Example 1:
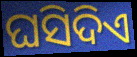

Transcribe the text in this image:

ଘସିଦିଏ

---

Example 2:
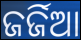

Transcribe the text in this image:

ଜର୍ଜିଆ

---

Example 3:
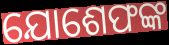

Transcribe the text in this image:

ଯୋଶେଫଙ୍କ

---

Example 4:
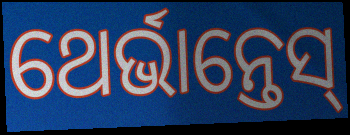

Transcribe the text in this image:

ଥେର୍ଭାନ୍ତେସ୍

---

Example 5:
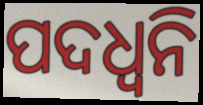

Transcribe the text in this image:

ପଦଧ୍ଵନି